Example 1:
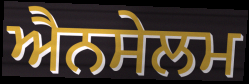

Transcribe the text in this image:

ਐਨਸੇਲਮ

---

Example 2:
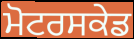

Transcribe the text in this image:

ਮੋਟਰਸਕੇਡ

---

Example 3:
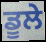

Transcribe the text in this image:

ਡੂਲੇ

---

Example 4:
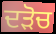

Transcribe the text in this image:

ਦੜੋਚ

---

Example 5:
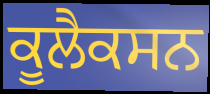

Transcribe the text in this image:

ਕੂਲੈਕਸਨ